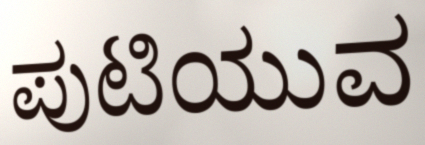
ಪುಟಿಯುವ